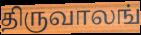
திருவாலங்